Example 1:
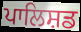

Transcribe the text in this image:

ਪਾਲਿਸ਼ਡ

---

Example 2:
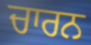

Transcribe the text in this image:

ਚਾਰਨ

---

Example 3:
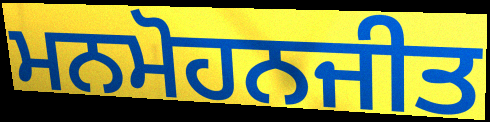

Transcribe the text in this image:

ਮਨਮੋਹਨਜੀਤ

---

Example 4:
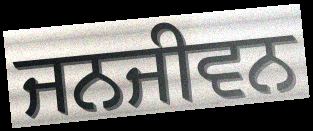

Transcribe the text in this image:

ਜਨਜੀਵਨ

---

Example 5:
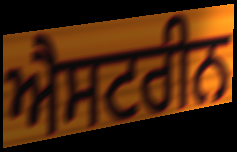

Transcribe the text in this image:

ਐਸਟਰੀਨ